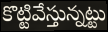
కొట్టివేస్తున్నట్టు